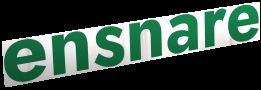
ensnare